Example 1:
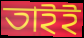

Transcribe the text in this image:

তাইই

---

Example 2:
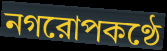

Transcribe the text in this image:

নগরোপকণ্ঠে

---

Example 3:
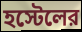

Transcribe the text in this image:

হস্টেলের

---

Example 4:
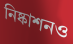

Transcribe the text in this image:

নিষ্কাশনও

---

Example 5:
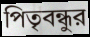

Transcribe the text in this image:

পিতৃবন্ধুর